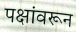
पक्षांवरून